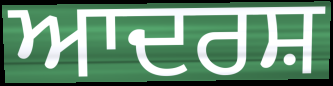
ਆਦਰਸ਼